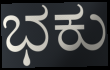
ಭಕು